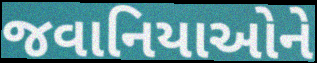
જવાનિયાઓને